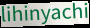
lihinyachi